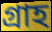
গ্রাহ